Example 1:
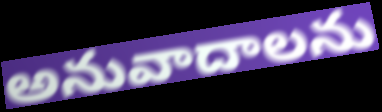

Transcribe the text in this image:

అనువాదాలను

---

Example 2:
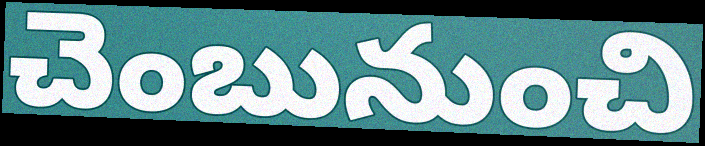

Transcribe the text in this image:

చెంబునుంచి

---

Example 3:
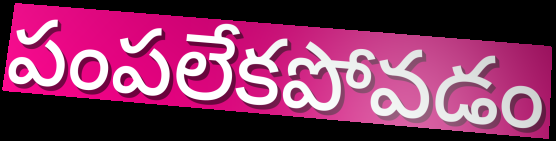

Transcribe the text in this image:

పంపలేకపోవడం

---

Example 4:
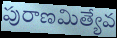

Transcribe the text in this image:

పురాణమిత్యేవ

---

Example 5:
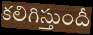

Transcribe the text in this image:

కలిగిస్తుందీ